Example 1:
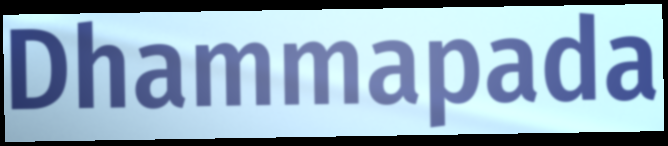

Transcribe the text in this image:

Dhammapada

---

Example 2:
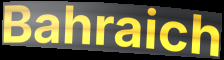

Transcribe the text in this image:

Bahraich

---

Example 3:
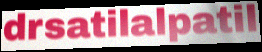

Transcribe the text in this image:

drsatilalpatil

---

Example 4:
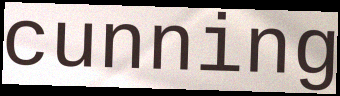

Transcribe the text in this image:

cunning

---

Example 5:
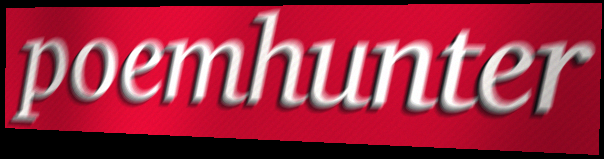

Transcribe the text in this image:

poemhunter